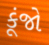
કૂંજો